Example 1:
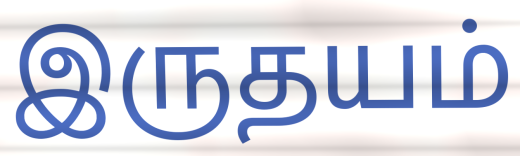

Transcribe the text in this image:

இருதயம்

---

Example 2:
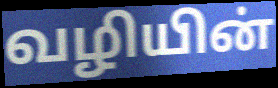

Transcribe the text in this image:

வழியின்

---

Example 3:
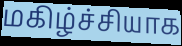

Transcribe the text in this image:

மகிழ்ச்சியாக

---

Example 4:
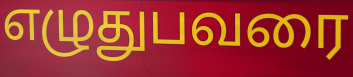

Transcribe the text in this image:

எழுதுபவரை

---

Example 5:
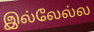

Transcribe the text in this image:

இல்லேல்ல